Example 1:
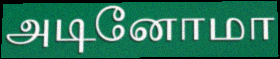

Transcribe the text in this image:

அடினோமா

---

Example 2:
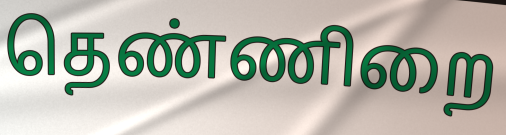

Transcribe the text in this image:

தெண்ணிறை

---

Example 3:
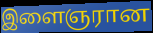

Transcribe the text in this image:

இளைஞரான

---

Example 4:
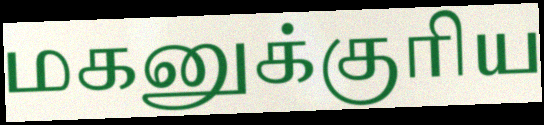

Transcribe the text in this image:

மகனுக்குரிய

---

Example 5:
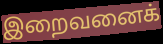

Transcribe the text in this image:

இறைவனைக்